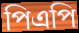
পিএপি